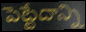
పెట్టేదాన్ని